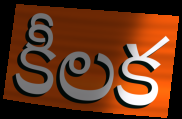
కీలక